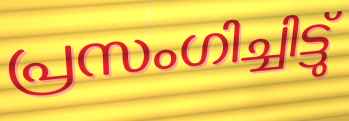
പ്രസംഗിച്ചിട്ടു്